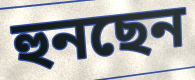
হুনছেন